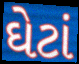
ઘેટાં